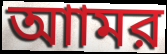
আামর